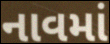
નાવમાં